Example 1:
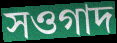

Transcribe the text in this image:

সওগাদ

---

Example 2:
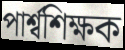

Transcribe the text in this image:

পার্শ্বশিক্ষক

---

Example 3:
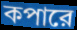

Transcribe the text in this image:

কপারে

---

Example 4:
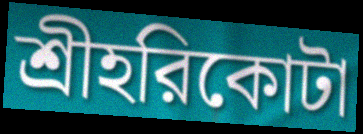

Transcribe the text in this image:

শ্রীহরিকোটা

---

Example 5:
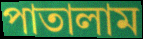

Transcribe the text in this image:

পাতালাম